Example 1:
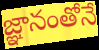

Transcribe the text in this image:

జ్ఞానంతోనే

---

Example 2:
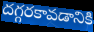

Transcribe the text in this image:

దగ్గరకావడానికి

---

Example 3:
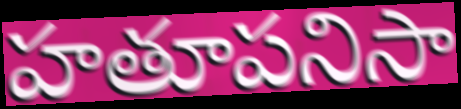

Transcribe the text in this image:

హతూపనిసా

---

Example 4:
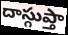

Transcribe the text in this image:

దాస్గుప్తా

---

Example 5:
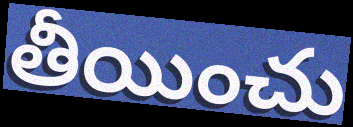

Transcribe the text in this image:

తీయించు